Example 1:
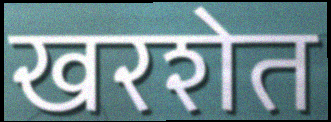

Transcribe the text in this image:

खरशेत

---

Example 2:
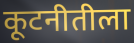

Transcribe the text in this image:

कूटनीतीला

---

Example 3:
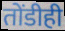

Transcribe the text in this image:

तोंडीही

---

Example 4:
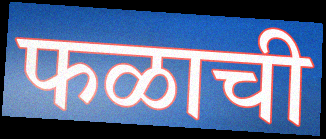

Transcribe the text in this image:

फळाची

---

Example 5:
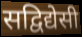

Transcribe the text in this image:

सद्विद्येसी